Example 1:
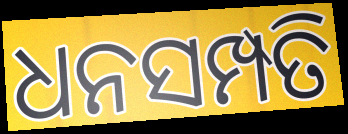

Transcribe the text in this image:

ଧନସମ୍ପତି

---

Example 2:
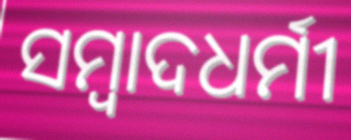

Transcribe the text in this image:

ସମ୍ବାଦଧର୍ମୀ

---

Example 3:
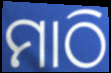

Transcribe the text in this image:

ମାଠି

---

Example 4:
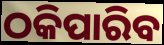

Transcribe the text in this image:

ଠକିପାରିବ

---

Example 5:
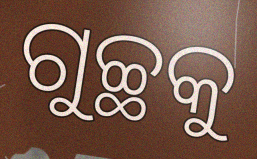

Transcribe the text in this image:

ଗୁଚ୍ଛକୁ